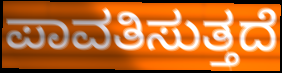
ಪಾವತಿಸುತ್ತದೆ